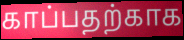
காப்பதற்காக